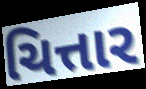
ચિત્તાર